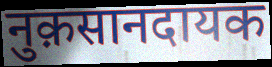
नुक़सानदायक